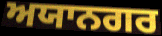
ਅਯਾਨਗਰ